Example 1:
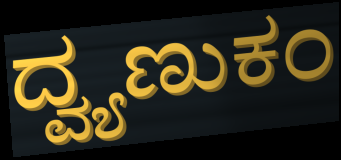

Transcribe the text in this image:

ದ್ವ್ಯಣುಕಂ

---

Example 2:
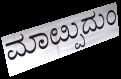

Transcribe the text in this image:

ಮಾೞ್ಪುದುಂ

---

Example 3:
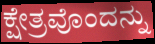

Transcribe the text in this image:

ಕ್ಷೇತ್ರವೊಂದನ್ನು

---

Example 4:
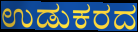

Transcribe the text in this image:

ಉಡುಕರದ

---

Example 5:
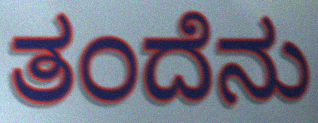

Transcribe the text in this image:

ತಂದೆನು